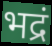
भद्रं